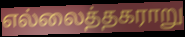
எல்லைத்தகராறு